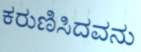
ಕರುಣಿಸಿದವನು